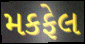
મકફેલ